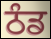
ਠੰਡ